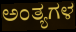
ಅಂತ್ಯಗಳ